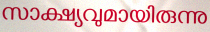
സാക്ഷ്യവുമായിരുന്നു